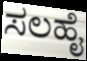
ಸಲಹೈ